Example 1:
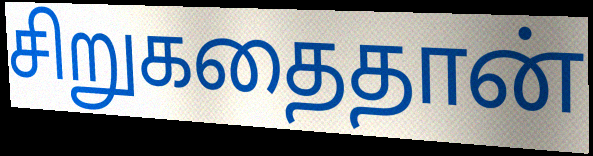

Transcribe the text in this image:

சிறுகதைதான்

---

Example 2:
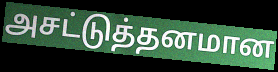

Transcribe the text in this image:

அசட்டுத்தனமான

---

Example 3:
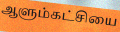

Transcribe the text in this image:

ஆளும்கட்சியை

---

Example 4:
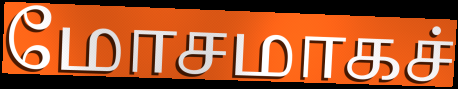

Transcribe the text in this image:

மோசமாகச்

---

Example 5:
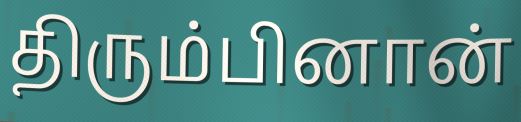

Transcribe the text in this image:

திரும்பினான்